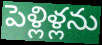
పెళ్లిళ్లను